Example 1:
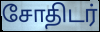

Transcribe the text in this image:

சோதிடர்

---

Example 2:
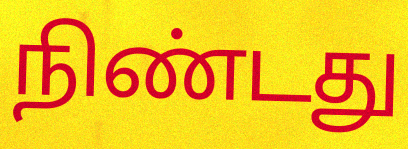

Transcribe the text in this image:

நிண்டது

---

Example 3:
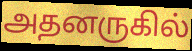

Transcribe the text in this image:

அதனருகில்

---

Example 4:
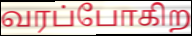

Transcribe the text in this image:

வரப்போகிற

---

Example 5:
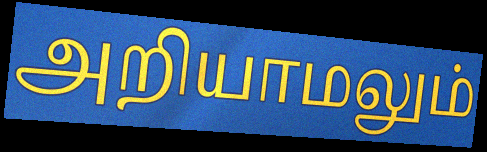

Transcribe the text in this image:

அறியாமலும்